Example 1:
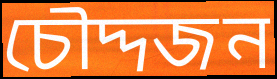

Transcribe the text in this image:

চৌদ্দজন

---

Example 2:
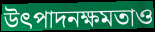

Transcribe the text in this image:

উৎপাদনক্ষমতাও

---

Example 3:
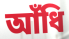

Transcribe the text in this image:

আঁধি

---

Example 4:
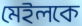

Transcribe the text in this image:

মেইলকে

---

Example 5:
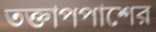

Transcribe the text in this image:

তক্তাপপাশের